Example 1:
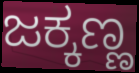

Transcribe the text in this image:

ಜಕ್ಕಣ್ಣ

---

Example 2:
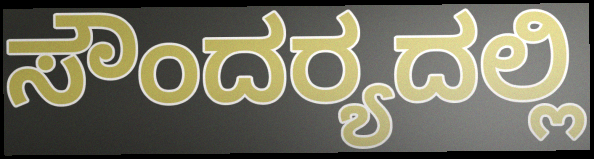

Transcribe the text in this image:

ಸೌಂದರ‍್ಯದಲ್ಲಿ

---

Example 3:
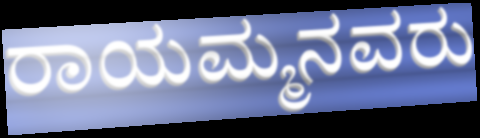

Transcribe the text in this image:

ರಾಯಮ್ಮನವರು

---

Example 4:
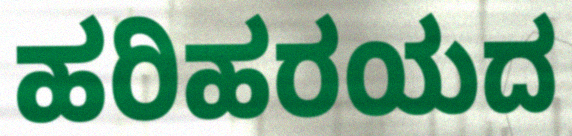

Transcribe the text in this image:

ಹರಿಹರಯದ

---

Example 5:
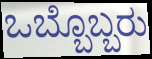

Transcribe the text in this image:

ಒಬ್ಬೊಬ್ಬರು